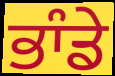
ਭਾੰਡੇ